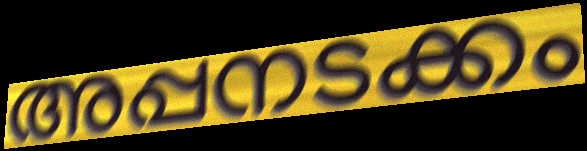
അപ്പനടക്കം